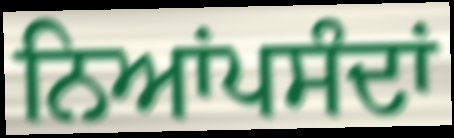
ਨਿਆਂਪਸੰਦਾਂ